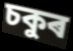
চকুৰ